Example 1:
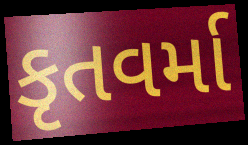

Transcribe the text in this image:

કૃતવર્મા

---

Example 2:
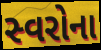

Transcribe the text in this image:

સ્વરોના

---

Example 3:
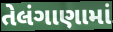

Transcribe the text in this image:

તેલંગાણામાં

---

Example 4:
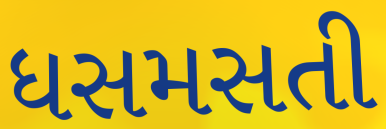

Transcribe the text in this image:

ધસમસતી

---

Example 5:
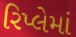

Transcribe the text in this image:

રિપ્લેમાં